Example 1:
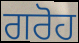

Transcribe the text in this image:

ਗਰੋਹ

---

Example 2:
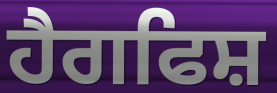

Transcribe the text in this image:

ਹੈਗਫਿਸ਼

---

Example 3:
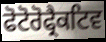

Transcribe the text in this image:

ਫੋਟੋਰੋਫ੍ਰੈਕਟਿਵ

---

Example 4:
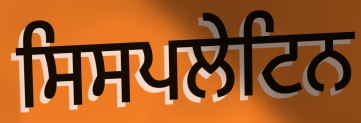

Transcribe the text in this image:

ਸਿਸਪਲੇਟਿਨ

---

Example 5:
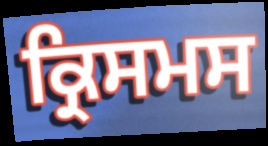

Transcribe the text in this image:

ਕ੍ਰਿਸਮਸ